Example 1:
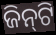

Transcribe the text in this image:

ଜିନ୍‌ଟି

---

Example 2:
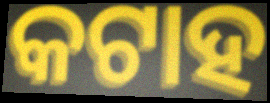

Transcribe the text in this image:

କଟାହ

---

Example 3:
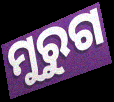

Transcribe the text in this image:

ମୁରୁଗ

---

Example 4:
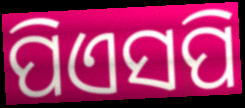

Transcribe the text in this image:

ପିଏସପି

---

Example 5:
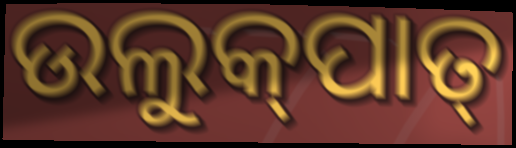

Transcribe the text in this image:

ଉଲୁକ୍‌ପାତ୍